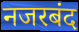
नजरबंद